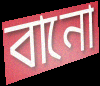
বানো